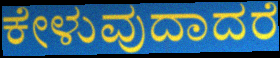
ಕೇಳುವುದಾದರೆ